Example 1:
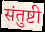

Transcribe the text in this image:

संतुष्टी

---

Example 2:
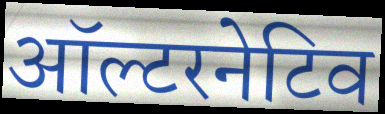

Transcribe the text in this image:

ऑल्टरनेटिव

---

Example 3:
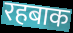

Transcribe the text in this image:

रहबाक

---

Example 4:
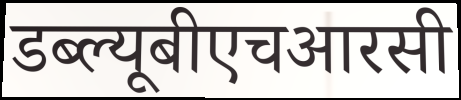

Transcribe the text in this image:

डब्ल्यूबीएचआरसी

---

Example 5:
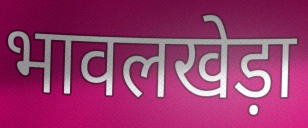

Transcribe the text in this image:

भावलखेड़ा